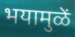
भयामुळें